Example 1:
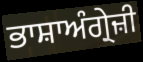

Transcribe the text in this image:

ਭਾਸ਼ਾਅੰਗ੍ਰੇਜ਼ੀ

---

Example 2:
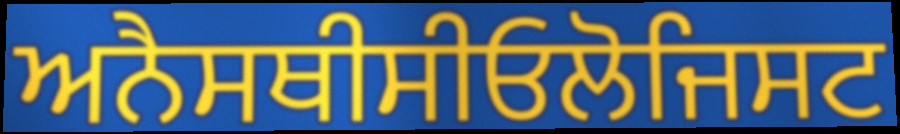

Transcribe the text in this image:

ਅਨੈਸਥੀਸੀਓਲੋਜਿਸਟ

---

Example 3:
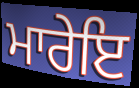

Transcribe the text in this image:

ਮਾਰੇਇ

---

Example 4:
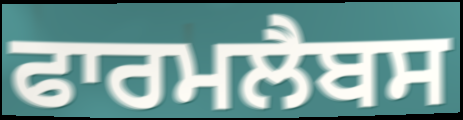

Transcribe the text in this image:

ਫਾਰਮਲੈਬਸ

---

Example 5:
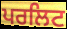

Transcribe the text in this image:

ਪਰਲਿਟ